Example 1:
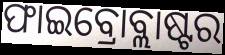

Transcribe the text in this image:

ଫାଇବ୍ରୋବ୍ଲାଷ୍ଟର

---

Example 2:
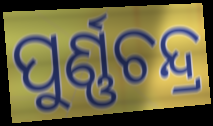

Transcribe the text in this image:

ପୁର୍ଣ୍ଣଚନ୍ଦ୍ର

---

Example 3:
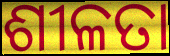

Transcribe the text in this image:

ଶୀଳତା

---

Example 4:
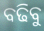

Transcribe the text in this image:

ବଢିବୁ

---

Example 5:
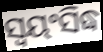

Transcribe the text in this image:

ସ୍ୱୟଂସିଦ୍ଧ